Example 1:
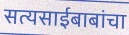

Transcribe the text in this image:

सत्यसाईबाबांचा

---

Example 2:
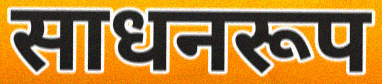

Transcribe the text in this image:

साधनरूप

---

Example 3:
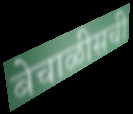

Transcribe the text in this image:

बेचाळीसची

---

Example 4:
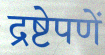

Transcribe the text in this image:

द्रष्टेपणें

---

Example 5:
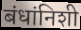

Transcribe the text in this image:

बंधांनिशी